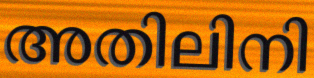
അതിലിനി